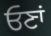
ਓਣਾਂ